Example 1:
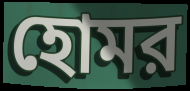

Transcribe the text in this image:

হোমর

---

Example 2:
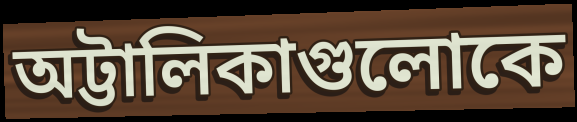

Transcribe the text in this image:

অট্টালিকাগুলোকে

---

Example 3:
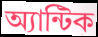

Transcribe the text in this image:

অ্যান্টিক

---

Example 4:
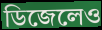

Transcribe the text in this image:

ডিজেলেও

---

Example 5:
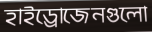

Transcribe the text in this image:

হাইড্রোজেনগুলো